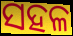
ସହଳ